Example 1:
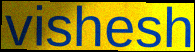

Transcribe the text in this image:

vishesh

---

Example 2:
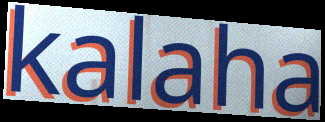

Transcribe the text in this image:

kalaha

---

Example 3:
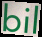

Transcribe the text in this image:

bil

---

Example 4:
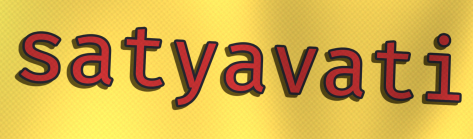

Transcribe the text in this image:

satyavati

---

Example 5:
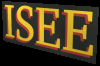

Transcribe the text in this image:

ISEE